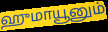
ஹுமாயூனும்